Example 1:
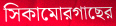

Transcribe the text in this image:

সিকামোরগাছের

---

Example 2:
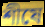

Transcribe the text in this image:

শীষে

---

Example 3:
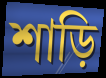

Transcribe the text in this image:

শাড়ি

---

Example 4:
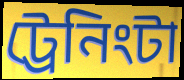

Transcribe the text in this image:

ট্রেনিংটা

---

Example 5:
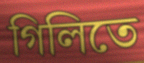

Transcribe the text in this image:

গিলিতে